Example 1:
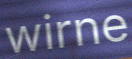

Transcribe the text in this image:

wirne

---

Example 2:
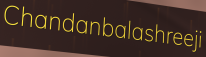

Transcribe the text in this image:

Chandanbalashreeji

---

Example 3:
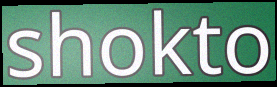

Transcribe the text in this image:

shokto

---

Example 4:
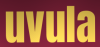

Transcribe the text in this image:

uvula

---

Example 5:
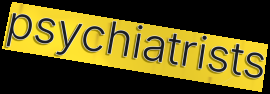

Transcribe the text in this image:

psychiatrists